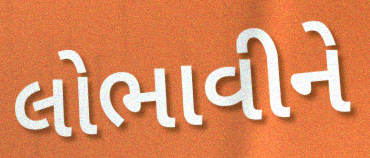
લોભાવીને